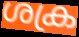
ശക്ര